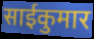
साईकुमार